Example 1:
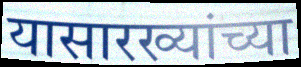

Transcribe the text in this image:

यासारख्यांच्या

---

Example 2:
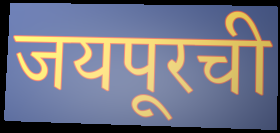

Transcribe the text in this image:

जयपूरची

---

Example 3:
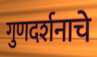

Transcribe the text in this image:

गुणदर्शनाचे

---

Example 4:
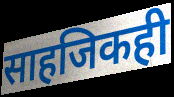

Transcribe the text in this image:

साहजिकही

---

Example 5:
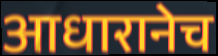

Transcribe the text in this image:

आधारानेच